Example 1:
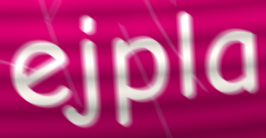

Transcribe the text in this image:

ejpla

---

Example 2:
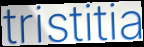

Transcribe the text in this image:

tristitia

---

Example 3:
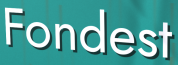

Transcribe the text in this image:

Fondest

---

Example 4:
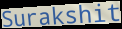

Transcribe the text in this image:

Surakshit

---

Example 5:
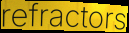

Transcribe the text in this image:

refractors